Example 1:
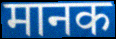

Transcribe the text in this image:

मानक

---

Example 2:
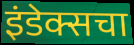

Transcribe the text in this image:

इंडेक्सचा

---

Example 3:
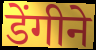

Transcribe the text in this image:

डेंगीने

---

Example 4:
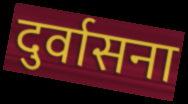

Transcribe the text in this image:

दुर्वासना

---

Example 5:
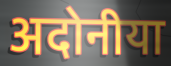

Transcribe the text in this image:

अदोनीया